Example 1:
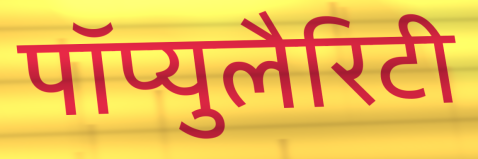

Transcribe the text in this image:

पॉप्युलैरिटी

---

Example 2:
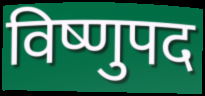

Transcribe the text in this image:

विष्‍णुपद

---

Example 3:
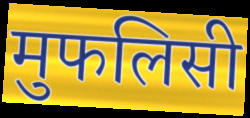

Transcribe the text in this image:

मुफलिसी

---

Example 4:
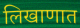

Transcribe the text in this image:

लिखाणात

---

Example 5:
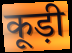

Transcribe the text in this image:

कूड़ी